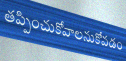
తప్పించుకోవాలనుకోవడం